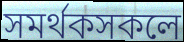
সমৰ্থকসকলে